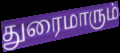
துரைமாரும்